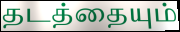
தடத்தையும்